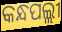
କନ୍ଧପଲ୍ଲୀ